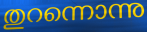
തുറന്നൊന്നു